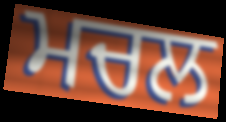
ਮਚਲ